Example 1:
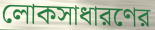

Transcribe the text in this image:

লোকসাধারণের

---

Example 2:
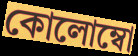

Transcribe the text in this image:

কোলোম্বো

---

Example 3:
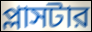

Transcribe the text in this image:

প্লাসটার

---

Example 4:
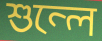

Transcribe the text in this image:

শুন্লে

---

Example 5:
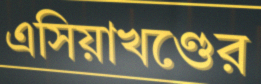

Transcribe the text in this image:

এসিয়াখণ্ডের